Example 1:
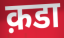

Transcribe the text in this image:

क़डा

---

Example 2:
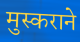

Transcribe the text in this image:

मुस्कराने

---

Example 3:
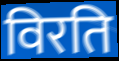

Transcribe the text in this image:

विरति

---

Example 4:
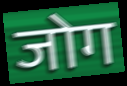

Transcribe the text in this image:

जोग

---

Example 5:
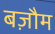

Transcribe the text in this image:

बज़ौम